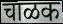
चाळक